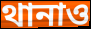
থানাও